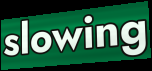
slowing